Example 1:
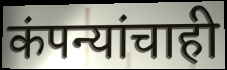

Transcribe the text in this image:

कंपन्यांचाही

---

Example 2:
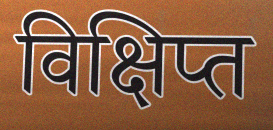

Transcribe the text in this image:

विक्षिप्त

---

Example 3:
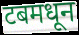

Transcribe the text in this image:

टबमधून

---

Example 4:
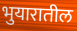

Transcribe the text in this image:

भुयारातील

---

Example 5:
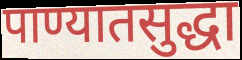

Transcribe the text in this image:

पाण्यातसुद्धा